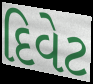
દિવેટ